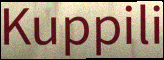
Kuppili